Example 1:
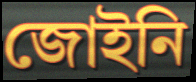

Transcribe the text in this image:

জোইনি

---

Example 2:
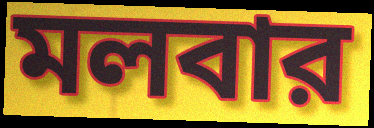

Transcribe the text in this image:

মলবার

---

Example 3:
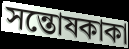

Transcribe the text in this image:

সন্তোষকাকা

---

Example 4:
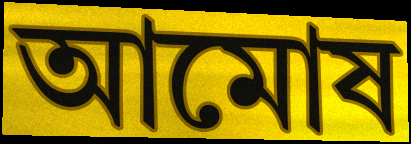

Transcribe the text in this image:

আমোষ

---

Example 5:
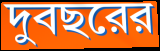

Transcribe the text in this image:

দুবছরের